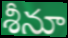
శీనూ